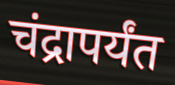
चंद्रापर्यंत